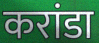
करांडा